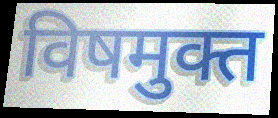
विषमुक्त